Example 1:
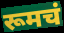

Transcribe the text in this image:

रूमचं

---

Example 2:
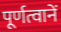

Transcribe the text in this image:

पूर्णत्वानें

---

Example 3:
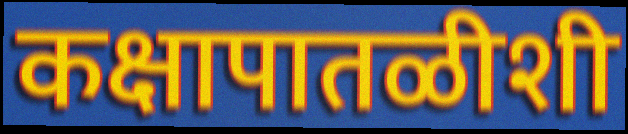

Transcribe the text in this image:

कक्षापातळीशी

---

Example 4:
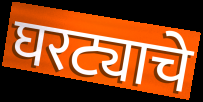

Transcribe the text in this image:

घरट्याचे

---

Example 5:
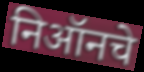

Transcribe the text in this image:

निऑनचे